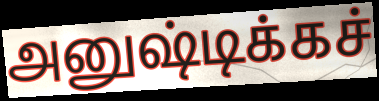
அனுஷ்டிக்கச்